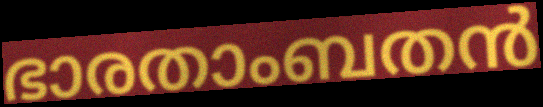
ഭാരതാംബതൻ